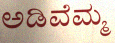
ಅಡಿವೆಮ್ಮ